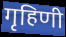
गृहिणी